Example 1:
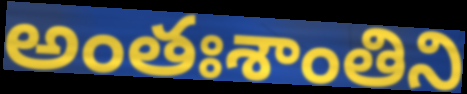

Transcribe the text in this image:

అంతఃశాంతిని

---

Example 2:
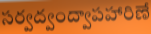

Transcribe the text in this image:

సర్వద్వంద్వాపహారిణే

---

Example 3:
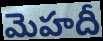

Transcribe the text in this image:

మెహదీ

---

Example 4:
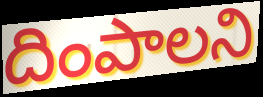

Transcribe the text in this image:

దింపాలని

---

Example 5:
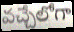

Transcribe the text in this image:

వచ్చేలోగా